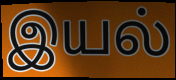
இயல்